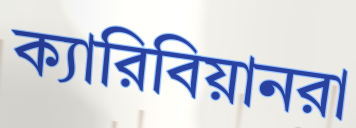
ক্যারিবিয়ানরা